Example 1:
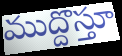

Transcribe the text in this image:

ముద్దొస్తూ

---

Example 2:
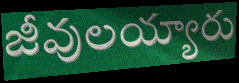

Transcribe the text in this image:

జీవులయ్యారు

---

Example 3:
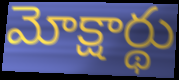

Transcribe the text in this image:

మోక్షార్థు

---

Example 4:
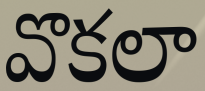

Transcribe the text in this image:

వొకలా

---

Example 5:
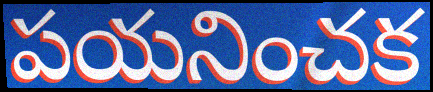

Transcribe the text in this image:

పయనించక